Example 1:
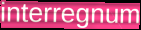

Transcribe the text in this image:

interregnum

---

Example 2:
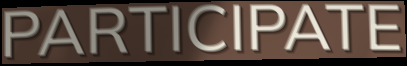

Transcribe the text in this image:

PARTICIPATE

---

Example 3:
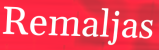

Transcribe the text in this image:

Remaljas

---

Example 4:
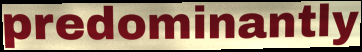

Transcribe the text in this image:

predominantly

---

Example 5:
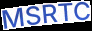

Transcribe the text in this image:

MSRTC